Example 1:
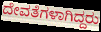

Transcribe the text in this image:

ದೇವತೆಗಳಾಗಿದ್ದರು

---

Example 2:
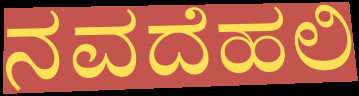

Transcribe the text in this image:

ನವದೆಹಲಿ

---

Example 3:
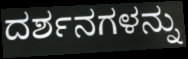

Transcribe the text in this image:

ದರ್ಶನಗಳನ್ನು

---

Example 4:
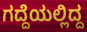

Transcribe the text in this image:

ಗದ್ದೆಯಲ್ಲಿದ್ದ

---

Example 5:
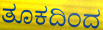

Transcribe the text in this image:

ತೂಕದಿಂದ